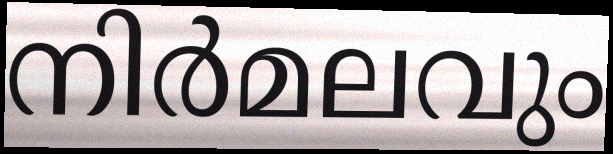
നിർമലവും